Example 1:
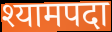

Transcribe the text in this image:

श्यामपदा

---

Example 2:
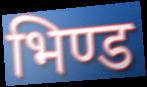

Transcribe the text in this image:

भिण्ड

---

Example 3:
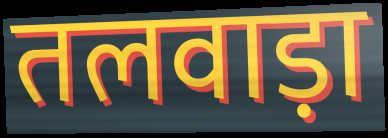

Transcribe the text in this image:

तलवाड़ा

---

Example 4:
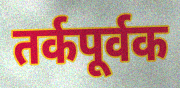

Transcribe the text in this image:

तर्कपूर्वक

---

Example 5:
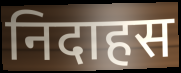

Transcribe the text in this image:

निदाहस